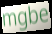
mgbe